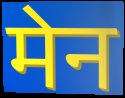
मेन